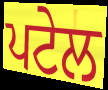
ਪਟੇਲ